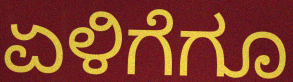
ಏಳಿಗೆಗೂ